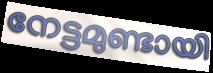
നേട്ടമുണ്ടായി